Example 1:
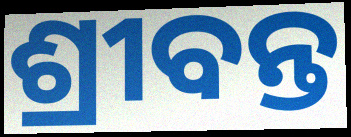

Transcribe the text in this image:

ଶ୍ରୀବନ୍ତ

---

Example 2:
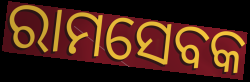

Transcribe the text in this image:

ରାମସେବକ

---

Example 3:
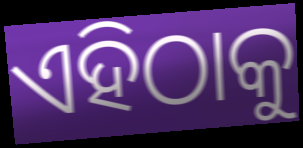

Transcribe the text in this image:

ଏହିଠାକୁ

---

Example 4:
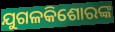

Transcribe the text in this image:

ଯୁଗଳକିଶୋରଙ୍କ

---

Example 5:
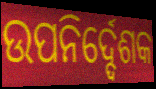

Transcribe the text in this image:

ଉପନିର୍ଦ୍ଦେଶକ